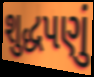
શુદ્ધપણું